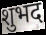
शुभद